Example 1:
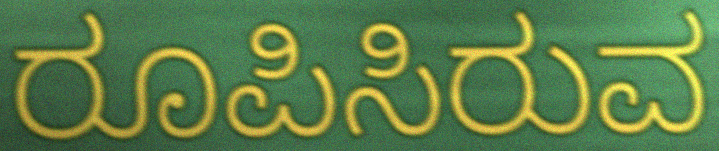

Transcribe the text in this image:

ರೂಪಿಸಿರುವ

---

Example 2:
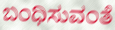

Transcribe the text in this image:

ಬಂಧಿಸುವಂತೆ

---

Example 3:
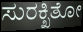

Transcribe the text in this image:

ಸುರಕ್ಖಿತೋ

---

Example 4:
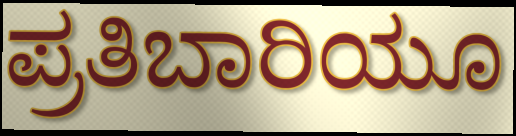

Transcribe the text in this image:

ಪ್ರತಿಬಾರಿಯೂ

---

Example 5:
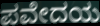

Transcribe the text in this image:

ಪವೇದಯ